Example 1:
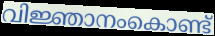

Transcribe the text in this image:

വിജ്ഞാനംകൊണ്ട്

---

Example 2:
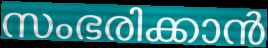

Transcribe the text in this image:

സംഭരിക്കാൻ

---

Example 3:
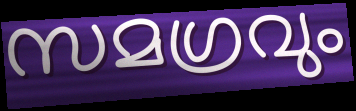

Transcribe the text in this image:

സമഗ്രവും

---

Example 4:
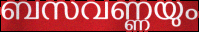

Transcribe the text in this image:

ബസവണ്ണയും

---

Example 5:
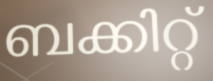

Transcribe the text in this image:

ബക്കിറ്റ്